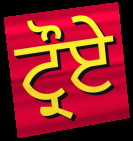
ਟ੍ਰੌਏ